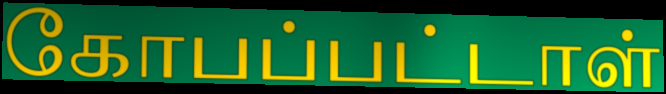
கோபப்பட்டாள்